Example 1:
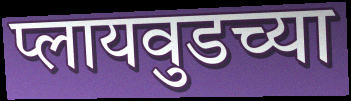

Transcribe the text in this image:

प्लायवुडच्या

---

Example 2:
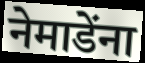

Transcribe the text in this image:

नेमाडेंना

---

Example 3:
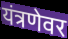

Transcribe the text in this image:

यंत्रणेवर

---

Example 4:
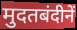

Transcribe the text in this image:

मुदतबंदीनें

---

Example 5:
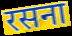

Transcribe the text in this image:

रसना